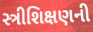
સ્ત્રીશિક્ષણની